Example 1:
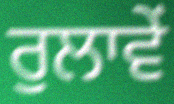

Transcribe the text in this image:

ਰੁਲਾਵੇਂ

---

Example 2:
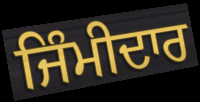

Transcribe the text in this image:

ਜਿੰਮੀਦਾਰ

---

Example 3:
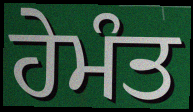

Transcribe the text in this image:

ਹੇਮੰਤ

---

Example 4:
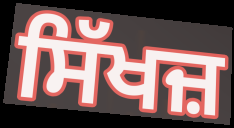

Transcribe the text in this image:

ਸਿੱਖਜ਼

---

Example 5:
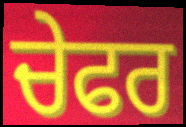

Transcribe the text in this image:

ਚੇਫਰ